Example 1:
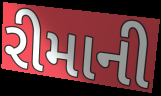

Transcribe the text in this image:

રીમાની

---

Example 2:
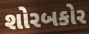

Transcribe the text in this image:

શોરબકોર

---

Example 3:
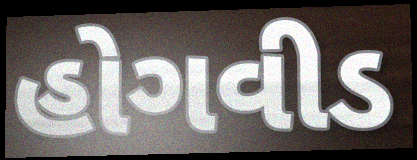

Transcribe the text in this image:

હોગવીડ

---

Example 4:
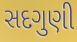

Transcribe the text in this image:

સદગુણી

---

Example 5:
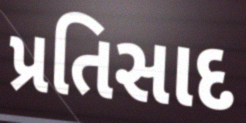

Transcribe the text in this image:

પ્રતિસાદ